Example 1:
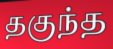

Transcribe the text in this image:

தகுந்த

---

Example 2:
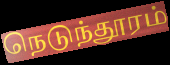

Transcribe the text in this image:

நெடுந்தூரம்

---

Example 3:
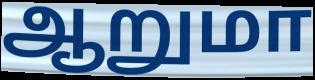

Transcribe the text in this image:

ஆறுமா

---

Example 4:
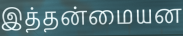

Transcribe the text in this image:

இத்தன்மையன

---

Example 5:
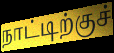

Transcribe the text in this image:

நாட்டிற்குச்